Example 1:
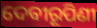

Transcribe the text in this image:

ଦେବୀରୂପିଣୀ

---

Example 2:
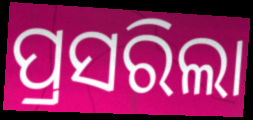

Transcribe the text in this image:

ପ୍ରସରିଲା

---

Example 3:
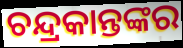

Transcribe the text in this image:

ଚନ୍ଦ୍ରକାନ୍ତଙ୍କର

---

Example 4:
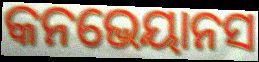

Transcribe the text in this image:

କନଭେୟାନସ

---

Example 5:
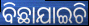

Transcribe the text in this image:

ବିଛାଯାଇଚି